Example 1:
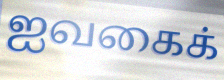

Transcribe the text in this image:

ஐவகைக்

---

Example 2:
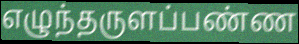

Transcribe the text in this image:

எழுந்தருளப்பண்ண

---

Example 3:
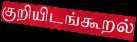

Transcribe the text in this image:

குறியிடங்கூறல்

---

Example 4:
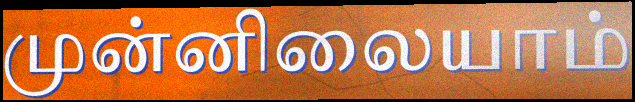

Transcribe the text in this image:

முன்னிலையாம்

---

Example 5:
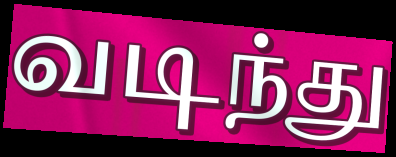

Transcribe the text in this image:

வடிந்து